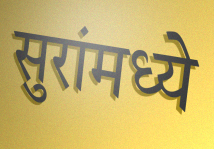
सुरांमध्ये